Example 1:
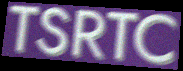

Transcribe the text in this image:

TSRTC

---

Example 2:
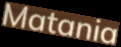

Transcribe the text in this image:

Matania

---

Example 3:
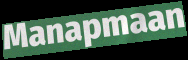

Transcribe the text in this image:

Manapmaan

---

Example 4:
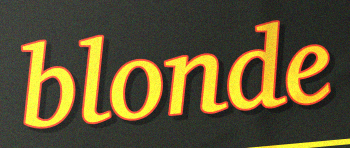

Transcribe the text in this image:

blonde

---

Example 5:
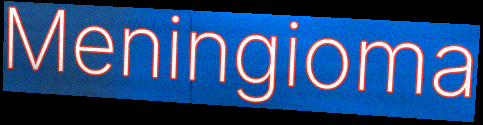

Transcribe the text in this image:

Meningioma